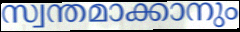
സ്വന്തമാക്കാനും